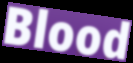
Blood